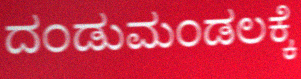
ದಂಡುಮಂಡಲಕ್ಕೆ